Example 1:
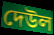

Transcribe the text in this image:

দেউল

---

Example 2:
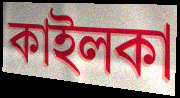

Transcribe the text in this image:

কাইলকা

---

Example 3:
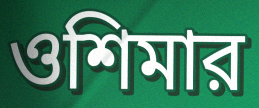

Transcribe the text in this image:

ওশিমার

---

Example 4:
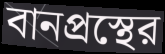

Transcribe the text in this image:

বানপ্রস্থের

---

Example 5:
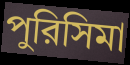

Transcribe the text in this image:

পুরিসিমা